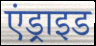
एंड्राइड